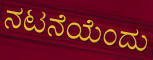
ನಟನೆಯೆಂದು